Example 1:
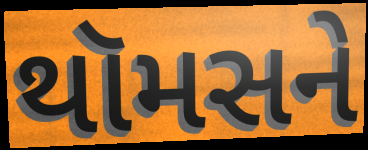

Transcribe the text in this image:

થૉમસને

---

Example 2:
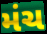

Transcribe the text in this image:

મંચ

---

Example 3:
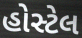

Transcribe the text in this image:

હોસ્ટેલ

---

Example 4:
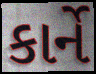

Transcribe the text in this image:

કાર્ને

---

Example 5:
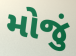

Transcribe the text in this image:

મોજું